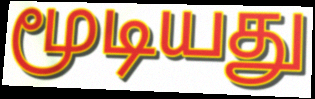
மூடியது